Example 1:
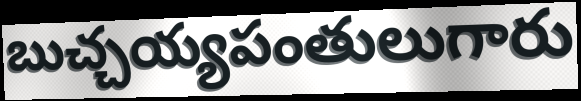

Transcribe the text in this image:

బుచ్చయ్యపంతులుగారు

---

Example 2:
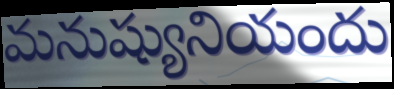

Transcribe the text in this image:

మనుష్యునియందు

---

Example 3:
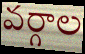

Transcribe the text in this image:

వర్గాల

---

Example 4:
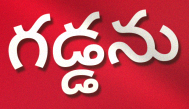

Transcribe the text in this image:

గడ్డను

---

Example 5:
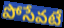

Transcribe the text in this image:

పోసేవటే